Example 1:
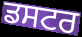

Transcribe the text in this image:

ਡਸਟਰ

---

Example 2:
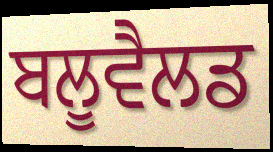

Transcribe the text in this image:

ਬਲੂਵੈਲਡ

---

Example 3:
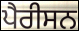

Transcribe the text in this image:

ਪੈਰੀਸਨ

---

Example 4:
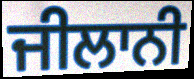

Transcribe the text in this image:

ਜੀਲਾਨੀ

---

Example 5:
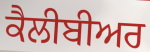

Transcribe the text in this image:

ਕੈਲੀਬੀਅਰ